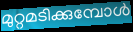
മുറ്റമടിക്കുമ്പോൾ